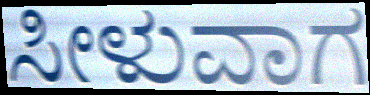
ಸೀಳುವಾಗ